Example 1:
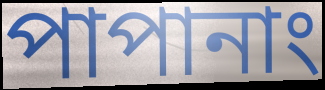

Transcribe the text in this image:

পাপানাং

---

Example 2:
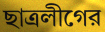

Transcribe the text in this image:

ছাত্রলীগের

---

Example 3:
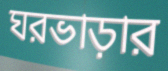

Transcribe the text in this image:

ঘরভাড়ার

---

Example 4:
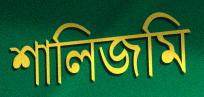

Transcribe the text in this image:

শালিজমি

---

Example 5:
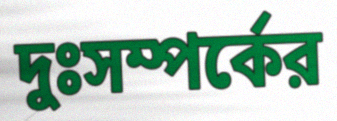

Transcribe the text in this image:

দুঃসম্পর্কের